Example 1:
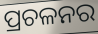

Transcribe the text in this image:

ପ୍ରଚଳନର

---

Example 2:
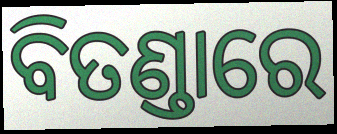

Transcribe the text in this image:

ବିତଣ୍ଡାରେ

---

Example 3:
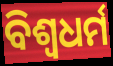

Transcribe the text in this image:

ବିଶ୍ବଧର୍ମ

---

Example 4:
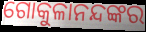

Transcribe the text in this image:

ଗୋକୁଳାନନ୍ଦଙ୍କର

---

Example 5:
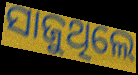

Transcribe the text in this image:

ସାଜୁଥିଲେ